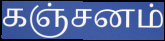
கஞ்சனம்